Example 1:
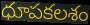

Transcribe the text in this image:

ధూపకలశం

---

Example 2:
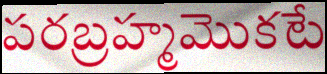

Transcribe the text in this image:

పరబ్రహ్మమొకటే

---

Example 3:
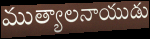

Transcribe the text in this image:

ముత్యాలనాయుడు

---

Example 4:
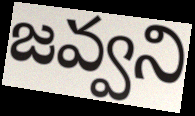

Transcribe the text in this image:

జవ్వని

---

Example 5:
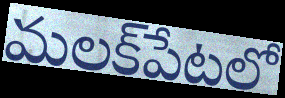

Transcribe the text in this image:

మలక్‌పేటలో